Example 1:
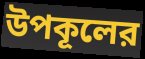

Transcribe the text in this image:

উপকূলের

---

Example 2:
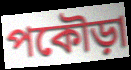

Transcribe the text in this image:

পকৌড়া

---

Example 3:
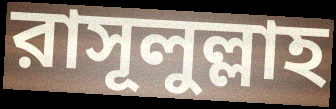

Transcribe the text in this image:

রাসূলুল্লাহ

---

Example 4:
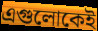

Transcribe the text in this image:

এগুলোকেই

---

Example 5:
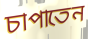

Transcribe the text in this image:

চাপাতেন